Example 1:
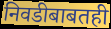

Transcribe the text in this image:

निवडीबाबतही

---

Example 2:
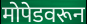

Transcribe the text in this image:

मोपेडवरून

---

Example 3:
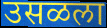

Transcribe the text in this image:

उसळला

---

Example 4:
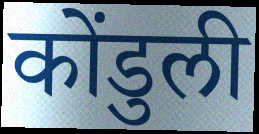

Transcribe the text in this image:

कोंडुली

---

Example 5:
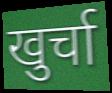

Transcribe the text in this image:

खुर्चा